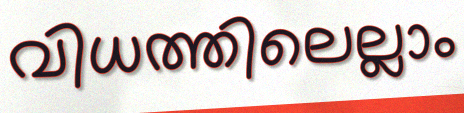
വിധത്തിലെല്ലാം